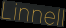
Linnell